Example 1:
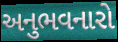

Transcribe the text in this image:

અનુભવનારો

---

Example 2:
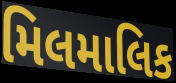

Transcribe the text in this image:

મિલમાલિક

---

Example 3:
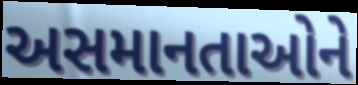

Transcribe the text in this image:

અસમાનતાઓને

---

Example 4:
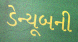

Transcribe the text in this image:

ડેન્યૂબની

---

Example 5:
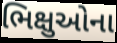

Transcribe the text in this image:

ભિક્ષુઓના